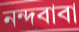
নন্দবাবা